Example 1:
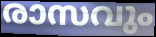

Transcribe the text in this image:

രാസവും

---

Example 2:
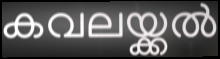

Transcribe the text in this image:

കവലയ്ക്കൽ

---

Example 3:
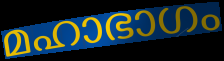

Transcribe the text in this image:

മഹാഭാഗം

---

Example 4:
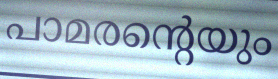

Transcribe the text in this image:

പാമരന്റെയും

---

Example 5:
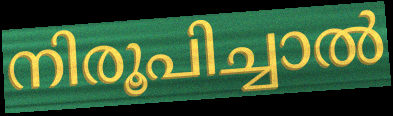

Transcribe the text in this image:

നിരൂപിച്ചാൽ